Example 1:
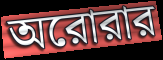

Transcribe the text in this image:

অরোরার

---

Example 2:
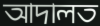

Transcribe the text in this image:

আদালত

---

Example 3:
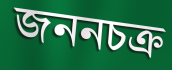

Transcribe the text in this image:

জননচক্র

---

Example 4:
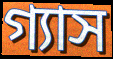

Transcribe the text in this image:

গ্যাস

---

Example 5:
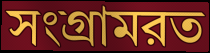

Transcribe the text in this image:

সংগ্রামরত